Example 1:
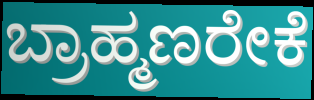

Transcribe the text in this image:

ಬ್ರಾಹ್ಮಣರೇಕೆ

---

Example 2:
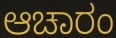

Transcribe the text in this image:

ಆಚಾರಂ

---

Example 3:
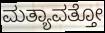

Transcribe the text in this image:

ಮತ್ಯಾವತ್ತೋ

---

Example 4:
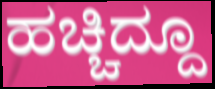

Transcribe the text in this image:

ಹಚ್ಚಿದ್ದೂ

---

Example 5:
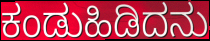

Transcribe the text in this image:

ಕಂಡುಹಿಡಿದನು